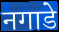
नगाडे